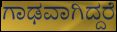
ಗಾಢವಾಗಿದ್ದರೆ